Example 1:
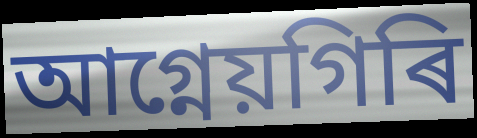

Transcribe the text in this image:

আগ্নেয়গিৰি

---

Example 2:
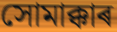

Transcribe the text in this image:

সোমাক্কাৰ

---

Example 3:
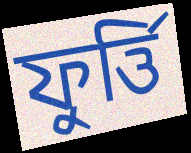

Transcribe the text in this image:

ফুৰ্ত্তি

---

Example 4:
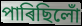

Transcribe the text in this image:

পাৰিছিলোঁ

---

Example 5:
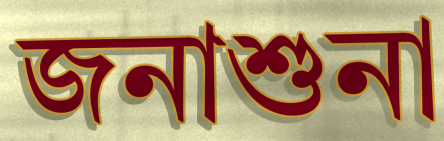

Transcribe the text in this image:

জনাশুনা